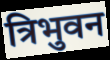
त्रिभुवन